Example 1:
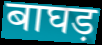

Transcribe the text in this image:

बाघड़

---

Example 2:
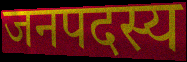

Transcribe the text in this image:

जनपदस्य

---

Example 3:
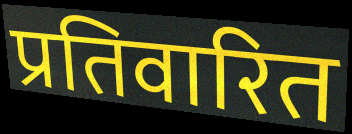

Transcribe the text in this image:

प्रतिवारित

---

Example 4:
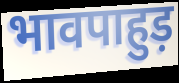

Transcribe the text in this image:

भावपाहुड़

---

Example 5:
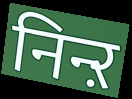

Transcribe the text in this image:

निन्ऱ